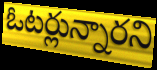
ఓటర్లున్నారని